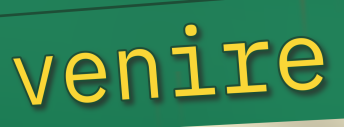
venire